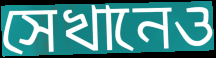
সেখানেও